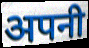
अपनी